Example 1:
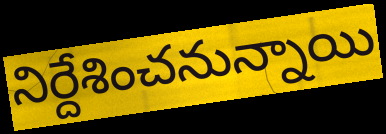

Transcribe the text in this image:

నిర్దేశించనున్నాయి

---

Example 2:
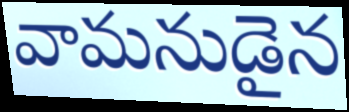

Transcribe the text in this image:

వామనుడైన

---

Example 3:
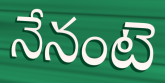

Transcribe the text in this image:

నేనంటె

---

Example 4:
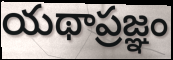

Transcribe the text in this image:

యథాప్రజ్ఞం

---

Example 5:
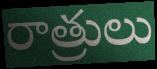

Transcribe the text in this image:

రాత్రులు